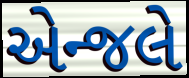
એન્જલે